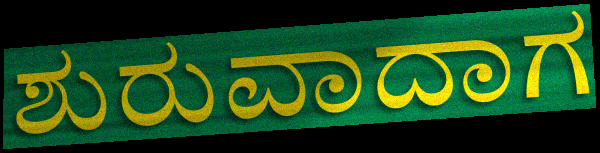
ಶುರುವಾದಾಗ